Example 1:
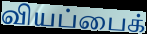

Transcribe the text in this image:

வியப்பைக்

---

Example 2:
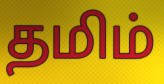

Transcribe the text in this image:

தமிம்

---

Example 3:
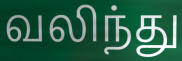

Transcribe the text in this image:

வலிந்து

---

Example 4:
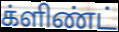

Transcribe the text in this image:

க்ளிண்ட்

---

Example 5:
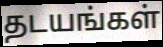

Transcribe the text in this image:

தடயங்கள்